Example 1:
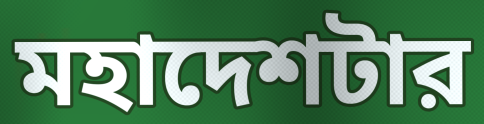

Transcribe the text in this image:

মহাদেশটার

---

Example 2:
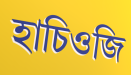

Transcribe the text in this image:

হাচিওজি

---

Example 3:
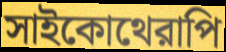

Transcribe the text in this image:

সাইকোথেরাপি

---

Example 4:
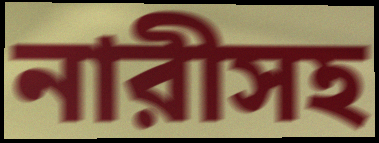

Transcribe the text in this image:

নারীসহ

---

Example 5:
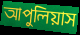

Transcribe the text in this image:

আপুলিয়াস